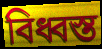
বিধ্বস্ত